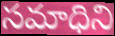
సమాధిని